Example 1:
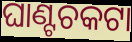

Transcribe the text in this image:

ଘାଣ୍ଟଚକଟା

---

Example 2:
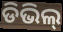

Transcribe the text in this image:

ଡିଭିଲ୍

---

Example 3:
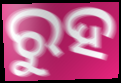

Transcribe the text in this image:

ରୁହ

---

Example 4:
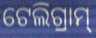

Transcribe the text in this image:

ଟେଲିଗ୍ରାମ୍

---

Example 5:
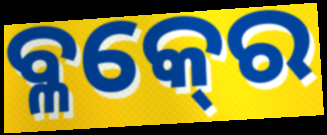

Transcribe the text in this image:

ବ୍ଳକ୍‍ରେ